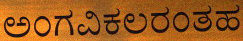
ಅಂಗವಿಕಲರಂತಹ